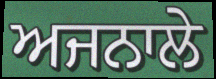
ਅਜਨਾਲੇ